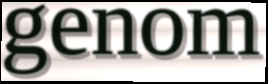
genom